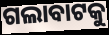
ଗଲାବାଟକୁ